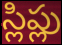
స్లిప్లు